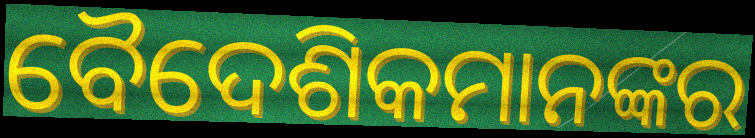
ବୈଦେଶିକମାନଙ୍କର